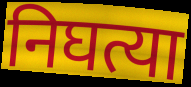
निघत्या